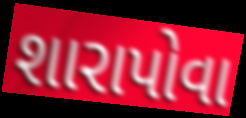
શારાપોવા